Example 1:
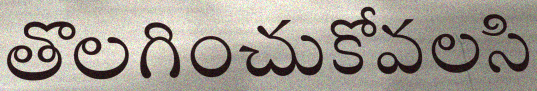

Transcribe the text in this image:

తొలగించుకోవలసి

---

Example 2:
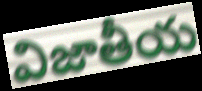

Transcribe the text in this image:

విజాతీయ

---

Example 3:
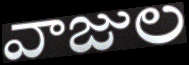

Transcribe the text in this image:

వాజుల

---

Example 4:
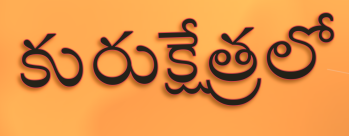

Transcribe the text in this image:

కురుక్షేత్రలో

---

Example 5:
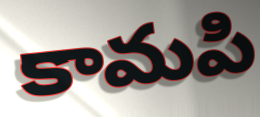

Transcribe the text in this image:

కామపి